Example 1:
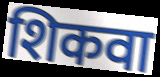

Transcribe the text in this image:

शिकवा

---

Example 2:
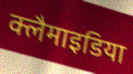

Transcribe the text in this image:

क्लैमाइडिया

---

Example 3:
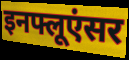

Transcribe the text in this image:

इनफ्लूएंसर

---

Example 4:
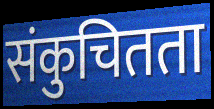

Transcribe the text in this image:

संकुचितता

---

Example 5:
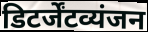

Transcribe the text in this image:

डिटर्जेंटव्यंजन